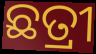
ଛତ୍ରୀ